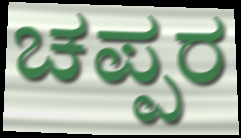
ಚಪ್ಪರ